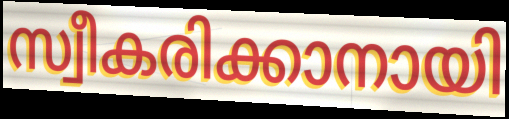
സ്വീകരിക്കാനായി